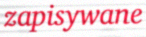
zapisywane